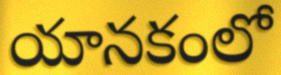
యానకంలో